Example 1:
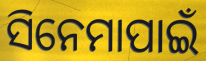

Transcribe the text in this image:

ସିନେମାପାଇଁ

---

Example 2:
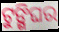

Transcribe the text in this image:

ଟୁଙ୍ଗିଘର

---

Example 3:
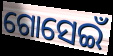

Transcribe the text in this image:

ଗୋସେଇଁ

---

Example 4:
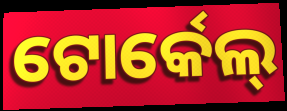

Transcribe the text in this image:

ଟୋର୍କେଲ୍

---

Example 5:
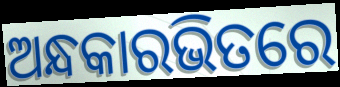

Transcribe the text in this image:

ଅନ୍ଧକାରଭିତରେ